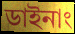
ডাইনাং